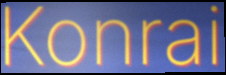
Konrai